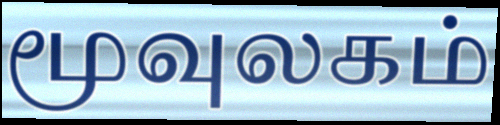
மூவுலகம்